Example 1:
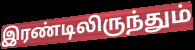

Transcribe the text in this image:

இரண்டிலிருந்தும்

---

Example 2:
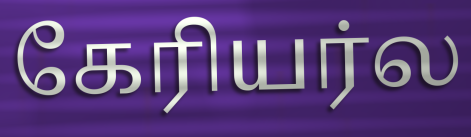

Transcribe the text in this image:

கேரியர்ல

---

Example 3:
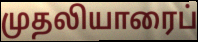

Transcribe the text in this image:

முதலியாரைப்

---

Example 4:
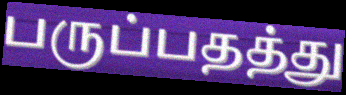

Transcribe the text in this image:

பருப்பதத்து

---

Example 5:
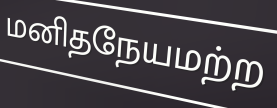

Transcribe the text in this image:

மனிதநேயமற்ற